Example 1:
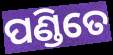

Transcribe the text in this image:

ପଣ୍ଡିତେ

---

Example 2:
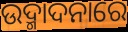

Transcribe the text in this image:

ଉଦ୍ମାଦନାରେ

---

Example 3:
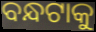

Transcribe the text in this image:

ବନ୍ଧଟାକୁ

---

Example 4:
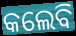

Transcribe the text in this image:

କଲେବି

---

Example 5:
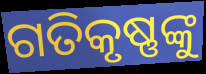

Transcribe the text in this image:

ଗତିକୃଷ୍ଣଙ୍କୁ